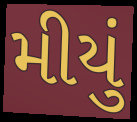
મીયું